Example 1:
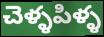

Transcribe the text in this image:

చెళ్ళపిళ్ళ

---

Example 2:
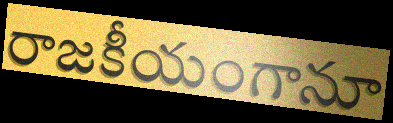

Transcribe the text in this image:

రాజకీయంగానూ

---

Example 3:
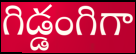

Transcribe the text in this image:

గిడ్డంగిగా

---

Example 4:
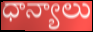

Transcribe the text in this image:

ధాన్యాలు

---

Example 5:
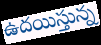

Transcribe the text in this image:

ఉదయిస్తున్న